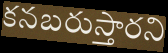
కనబరుస్తారని